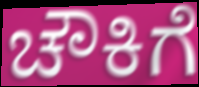
ಚೌಕಿಗೆ